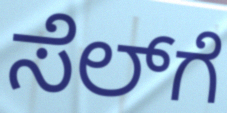
ಸೆಲ್‍ಗೆ